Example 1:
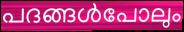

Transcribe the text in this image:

പദങ്ങൾപോലും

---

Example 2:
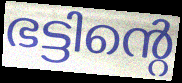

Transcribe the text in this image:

ഭട്ടിന്റെ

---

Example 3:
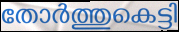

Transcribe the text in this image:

തോർത്തുകെട്ടി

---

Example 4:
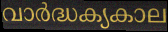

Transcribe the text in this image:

വാർദ്ധക്യകാല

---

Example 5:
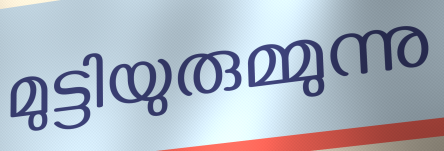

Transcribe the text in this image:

മുട്ടിയുരുമ്മുന്നു